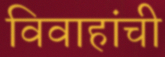
विवाहांची